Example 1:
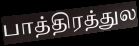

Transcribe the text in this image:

பாத்திரத்துல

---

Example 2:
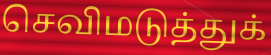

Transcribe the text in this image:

செவிமடுத்துக்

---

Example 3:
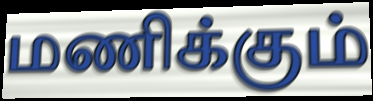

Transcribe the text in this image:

மணிக்கும்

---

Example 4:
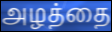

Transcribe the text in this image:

அழத்தை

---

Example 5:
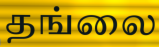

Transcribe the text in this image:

தங்லை